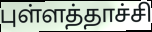
புள்ளத்தாச்சி